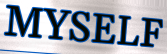
MYSELF